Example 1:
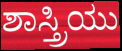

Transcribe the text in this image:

ಶಾಸ್ತ್ರಿಯು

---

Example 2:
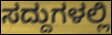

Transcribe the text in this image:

ಸದ್ದುಗಳಲ್ಲಿ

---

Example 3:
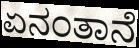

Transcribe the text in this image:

ಏನಂತಾನೆ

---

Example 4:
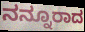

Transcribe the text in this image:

ನನ್ನೂರಾದ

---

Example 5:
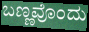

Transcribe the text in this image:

ಬಣ್ಣವೊಂದು